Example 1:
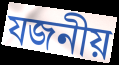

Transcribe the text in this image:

যজনীয়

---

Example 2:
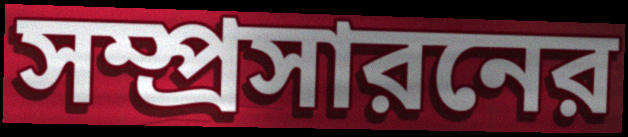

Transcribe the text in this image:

সম্প্রসারনের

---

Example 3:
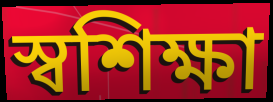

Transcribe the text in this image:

স্বশিক্ষা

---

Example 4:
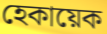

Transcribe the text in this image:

হেকায়েক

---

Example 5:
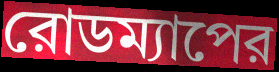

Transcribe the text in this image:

রোডম্যাপের